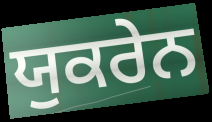
ਯੁਕਰੇਨ